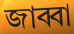
জাব্বা